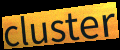
cluster